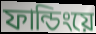
ফান্ডিংয়ে